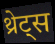
थ्रेट्स